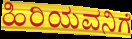
ಹಿರಿಯವನಿಗೆ